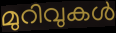
മുറിവുകൾ